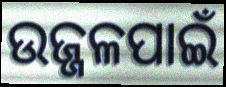
ଉଜ୍ଜଳପାଇଁ